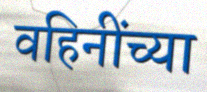
वहिनींच्या